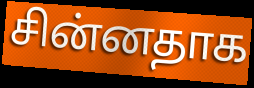
சின்னதாக